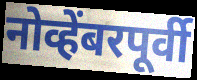
नोव्हेंबरपूर्वी